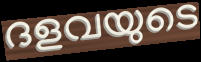
ദളവയുടെ